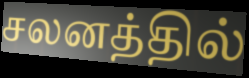
சலனத்தில்